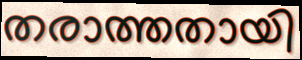
തരാത്തതായി